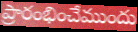
ప్రారంభించేముందు